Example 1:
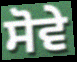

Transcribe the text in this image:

ਸੋਵੇ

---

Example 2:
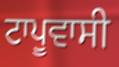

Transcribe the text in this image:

ਟਾਪੂਵਾਸੀ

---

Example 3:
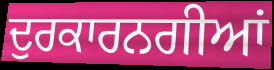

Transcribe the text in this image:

ਦੁਰਕਾਰਨਗੀਆਂ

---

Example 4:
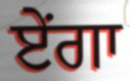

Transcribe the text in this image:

ਏਂਗਾ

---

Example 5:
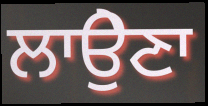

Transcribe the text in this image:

ਲਾਉੇਣਾ